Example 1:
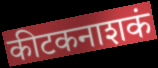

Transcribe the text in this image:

कीटकनाशकं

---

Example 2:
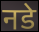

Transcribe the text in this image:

नडे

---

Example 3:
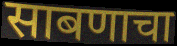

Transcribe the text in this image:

साबणाचा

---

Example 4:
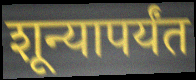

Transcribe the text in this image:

शून्यापर्यंत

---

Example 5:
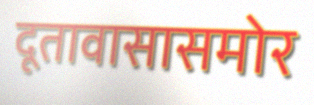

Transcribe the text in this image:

दूतावासासमोर